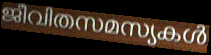
ജീവിതസമസ്യകൾ